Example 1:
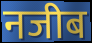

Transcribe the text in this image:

नजीब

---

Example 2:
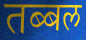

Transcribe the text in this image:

तब्बल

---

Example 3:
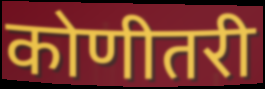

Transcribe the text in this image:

कोणीतरी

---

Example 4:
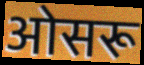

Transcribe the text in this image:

ओसरू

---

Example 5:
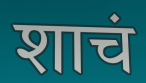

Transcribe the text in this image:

शाचं